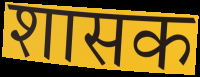
शासक